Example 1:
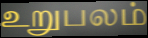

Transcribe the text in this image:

உறுபலம்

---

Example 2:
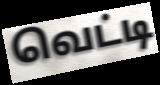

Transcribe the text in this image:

வெட்டி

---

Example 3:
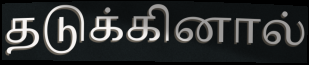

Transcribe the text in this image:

தடுக்கினால்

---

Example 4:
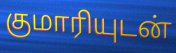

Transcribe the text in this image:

குமாரியுடன்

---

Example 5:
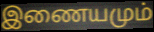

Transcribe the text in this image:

இணையமும்